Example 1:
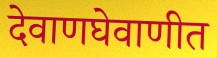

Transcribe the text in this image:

देवाणघेवाणीत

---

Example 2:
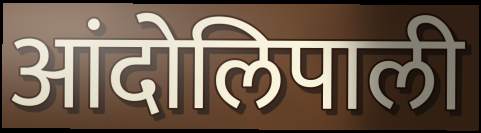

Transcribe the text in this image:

आंदोलिपाली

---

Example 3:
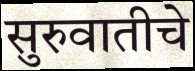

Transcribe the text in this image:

सुरुवातीचे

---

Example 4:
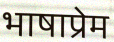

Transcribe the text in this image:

भाषाप्रेम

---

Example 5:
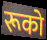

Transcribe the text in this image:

रूको